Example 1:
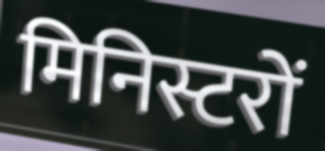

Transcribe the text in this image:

मिनिस्टरों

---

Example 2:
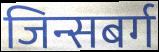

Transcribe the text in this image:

जिन्सबर्ग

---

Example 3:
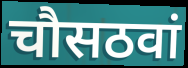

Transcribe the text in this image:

चौसठवां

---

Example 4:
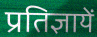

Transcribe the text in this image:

प्रतिज्ञायें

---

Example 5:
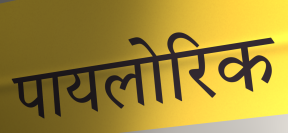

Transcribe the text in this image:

पायलोरिक